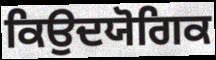
ਕਿਉਦਯੋਗਿਕ